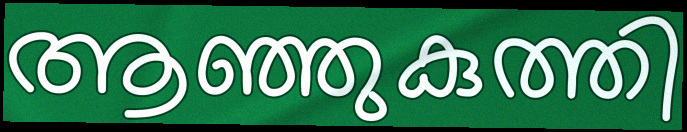
ആഞ്ഞുകുത്തി